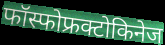
फॉस्फोफ्रक्टोकिनेज